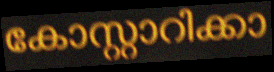
കോസ്റ്റാറിക്കാ